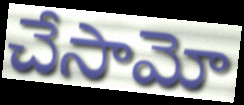
చేసామో